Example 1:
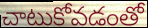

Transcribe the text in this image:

చాటుకోవడంతో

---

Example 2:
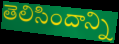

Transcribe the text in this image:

తెలిసిందాన్ని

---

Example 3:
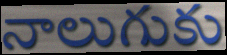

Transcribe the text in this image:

నాలుగుకు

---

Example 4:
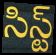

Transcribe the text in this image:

సిస్ట్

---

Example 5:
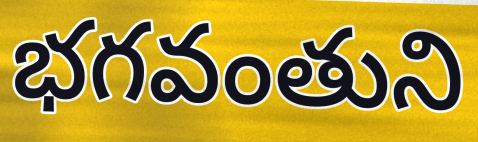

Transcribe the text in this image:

భగవంతుని